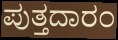
ಪುತ್ತದಾರಂ